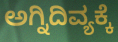
ಅಗ್ನಿದಿವ್ಯಕ್ಕೆ